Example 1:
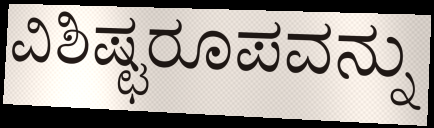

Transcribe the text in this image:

ವಿಶಿಷ್ಟರೂಪವನ್ನು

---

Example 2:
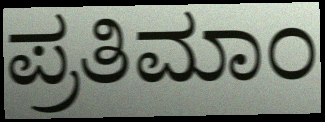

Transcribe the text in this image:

ಪ್ರತಿಮಾಂ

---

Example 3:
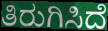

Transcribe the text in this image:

ತಿರುಗಿಸಿದೆ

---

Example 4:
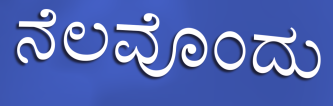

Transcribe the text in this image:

ನೆಲವೊಂದು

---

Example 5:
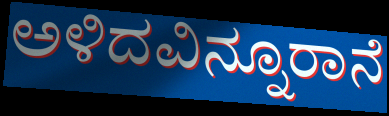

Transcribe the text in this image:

ಅಳಿದವಿನ್ನೂರಾನೆ